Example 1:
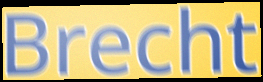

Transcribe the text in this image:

Brecht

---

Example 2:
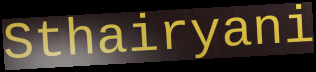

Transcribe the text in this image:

Sthairyani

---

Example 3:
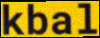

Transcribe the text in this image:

kbal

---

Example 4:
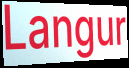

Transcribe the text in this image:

Langur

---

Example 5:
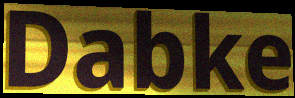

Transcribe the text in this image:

Dabke